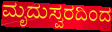
ಮೃದುಸ್ವರದಿಂದ